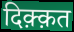
दिक़्क़त